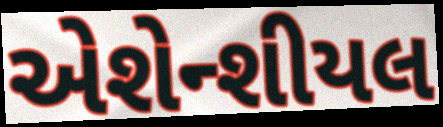
એશેન્શીયલ